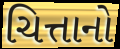
ચિત્તાનો